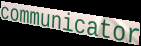
communicator